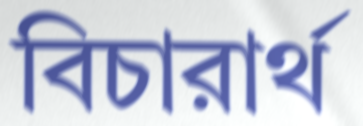
বিচারার্থ